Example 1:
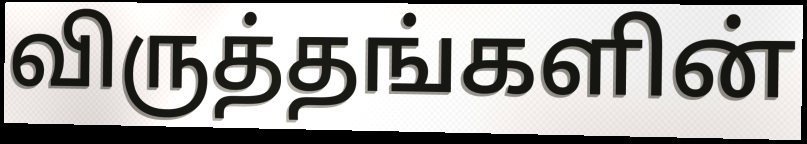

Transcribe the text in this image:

விருத்தங்களின்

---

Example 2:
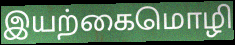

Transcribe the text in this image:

இயற்கைமொழி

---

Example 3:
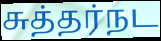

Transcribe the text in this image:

சுத்தர்நட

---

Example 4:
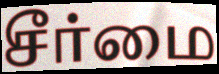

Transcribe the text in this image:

சீர்மை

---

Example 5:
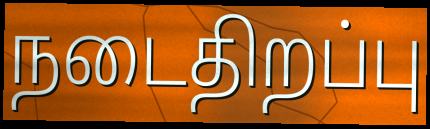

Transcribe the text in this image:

நடைதிறப்பு